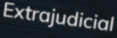
Extrajudicial